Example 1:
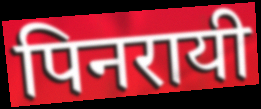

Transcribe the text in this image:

पिनरायी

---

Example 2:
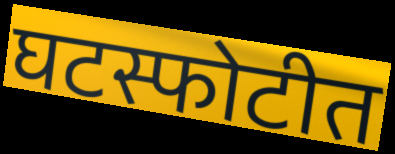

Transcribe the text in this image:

घटस्फोटीत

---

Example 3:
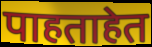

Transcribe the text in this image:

पाहताहेत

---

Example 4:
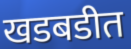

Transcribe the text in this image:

खडबडीत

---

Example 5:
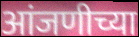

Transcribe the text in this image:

आंजणीच्या